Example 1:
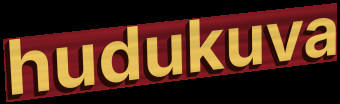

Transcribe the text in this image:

hudukuva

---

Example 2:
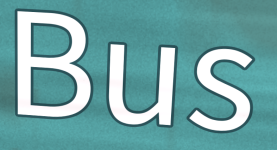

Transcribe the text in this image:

Bus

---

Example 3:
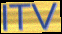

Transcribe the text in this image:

ITV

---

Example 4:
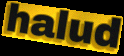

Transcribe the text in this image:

halud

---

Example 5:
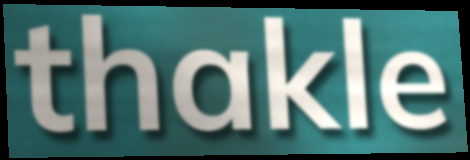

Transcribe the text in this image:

thakle